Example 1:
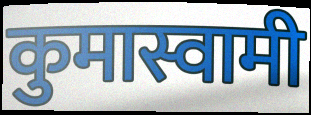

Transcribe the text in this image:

कुमास्वामी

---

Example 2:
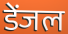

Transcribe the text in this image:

डेंजल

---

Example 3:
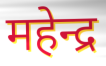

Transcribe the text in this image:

महेन्द्र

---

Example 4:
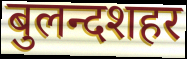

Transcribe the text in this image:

बुलन्दशहर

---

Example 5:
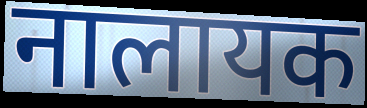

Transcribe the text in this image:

नालायक